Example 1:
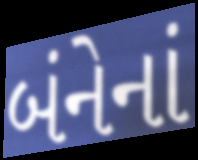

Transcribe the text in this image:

બંનેનાં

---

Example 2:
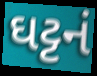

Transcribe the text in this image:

ઘટ્ટનં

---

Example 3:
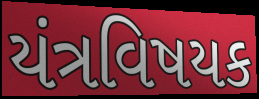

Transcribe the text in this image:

યંત્રવિષયક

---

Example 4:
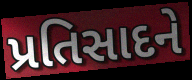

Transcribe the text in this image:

પ્રતિસાદને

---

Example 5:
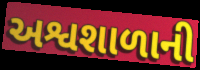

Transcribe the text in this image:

અશ્વશાળાની